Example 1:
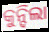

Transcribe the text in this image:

କୁନ୍ଦିଲା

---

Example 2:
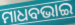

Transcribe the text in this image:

ମାଧବଭାଇ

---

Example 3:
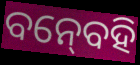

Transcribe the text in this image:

ବନ୍‍ବେହି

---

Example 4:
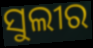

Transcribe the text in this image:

ସୁଲୀର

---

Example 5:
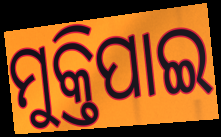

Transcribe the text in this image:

ମୁକ୍ତିପାଇ